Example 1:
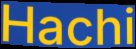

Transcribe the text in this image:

Hachi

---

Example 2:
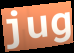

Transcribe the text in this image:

jug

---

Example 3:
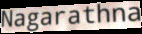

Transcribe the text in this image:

Nagarathna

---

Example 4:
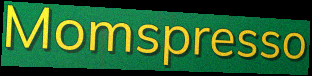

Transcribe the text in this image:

Momspresso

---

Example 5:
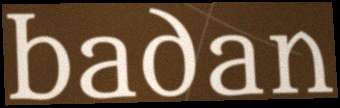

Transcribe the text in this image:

badan